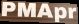
PMApr